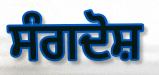
ਸੰਗਦੋਸ਼